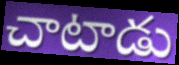
చాటాడు